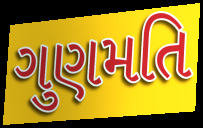
ગુણમતિ